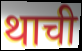
थाची